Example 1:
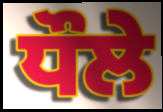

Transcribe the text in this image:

ਧੌਲੇ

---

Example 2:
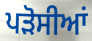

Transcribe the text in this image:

ਪੜੋਸੀਆਂ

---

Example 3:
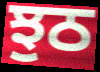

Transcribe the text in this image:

ਝੁਠ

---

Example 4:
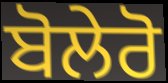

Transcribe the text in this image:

ਬੋਲੇਰੋ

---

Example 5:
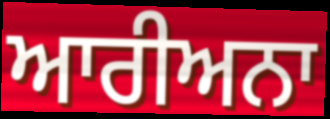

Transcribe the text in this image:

ਆਰੀਅਨਾ